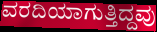
ವರದಿಯಾಗುತ್ತಿದ್ದವು